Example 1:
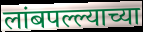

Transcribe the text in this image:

लांबपल्ल्याच्या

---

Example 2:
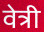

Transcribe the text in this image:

वेत्री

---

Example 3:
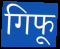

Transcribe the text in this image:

गिफू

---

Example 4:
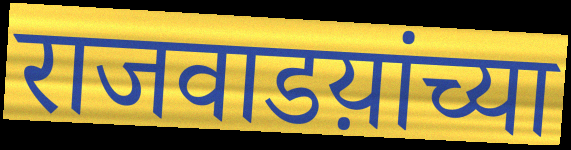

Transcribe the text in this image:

राजवाडय़ांच्या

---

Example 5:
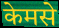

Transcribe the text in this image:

केमसे